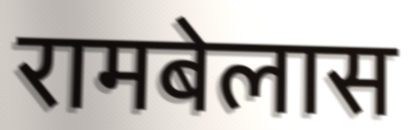
रामबेलास